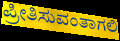
ಪ್ರೀತಿಸುವಂತಾಗಲಿ